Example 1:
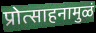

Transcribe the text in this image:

प्रोत्साहनामुळं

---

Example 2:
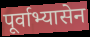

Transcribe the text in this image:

पूर्वाभ्यासेन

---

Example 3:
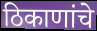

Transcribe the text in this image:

ठिकाणांचे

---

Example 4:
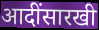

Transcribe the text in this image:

आदींसारखी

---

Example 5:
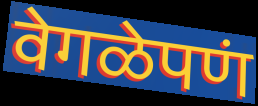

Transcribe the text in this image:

वेगळेपणं